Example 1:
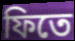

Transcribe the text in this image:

ফিতে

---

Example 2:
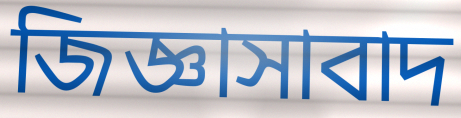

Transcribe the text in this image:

জিজ্ঞাসাবাদ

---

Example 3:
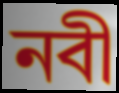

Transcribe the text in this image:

নবী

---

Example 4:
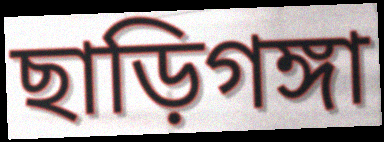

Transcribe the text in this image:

ছাড়িগঙ্গা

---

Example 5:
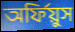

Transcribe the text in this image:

অর্ফিয়ুস